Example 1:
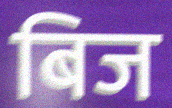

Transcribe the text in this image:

बिज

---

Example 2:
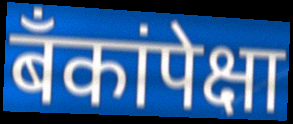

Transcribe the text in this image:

बँकांपेक्षा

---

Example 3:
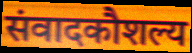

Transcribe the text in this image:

संवादकौशल्य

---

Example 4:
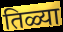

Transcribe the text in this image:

तिळ्या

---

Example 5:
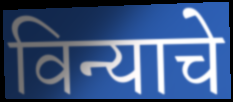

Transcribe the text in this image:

विन्याचे